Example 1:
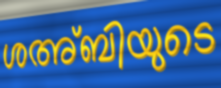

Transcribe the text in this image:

ശഅ്ബിയുടെ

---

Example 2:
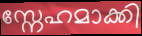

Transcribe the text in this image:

സ്നേഹമാക്കി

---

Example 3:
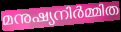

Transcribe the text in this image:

മനുഷ്യനിർമ്മിത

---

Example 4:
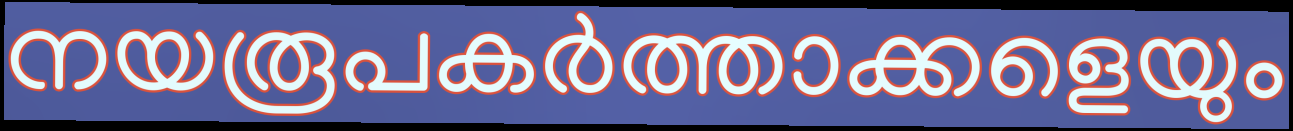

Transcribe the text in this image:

നയരൂപകർത്താക്കളെയും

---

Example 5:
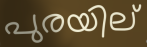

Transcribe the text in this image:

പുരയില്